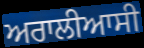
ਅਰਾਲੀਆਸੀ